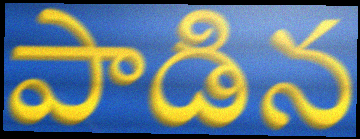
పాడిన